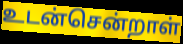
உடன்சென்றாள்